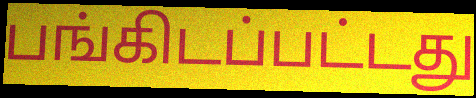
பங்கிடப்பட்டது